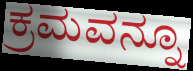
ಕ್ರಮವನ್ನೂ